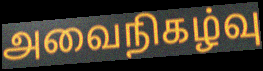
அவைநிகழ்வு